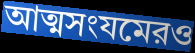
আত্মসংযমেরও